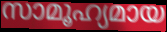
സാമൂഹ്യമായ